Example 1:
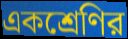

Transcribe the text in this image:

একশ্রেণির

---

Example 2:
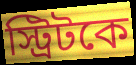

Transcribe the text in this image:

স্ট্রিটকে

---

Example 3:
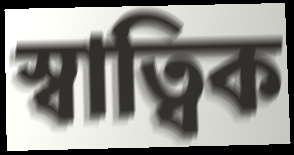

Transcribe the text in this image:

স্বাত্বিক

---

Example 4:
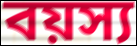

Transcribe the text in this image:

বয়স্য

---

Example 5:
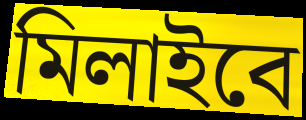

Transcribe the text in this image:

মিলাইবে